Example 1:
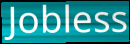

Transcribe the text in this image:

Jobless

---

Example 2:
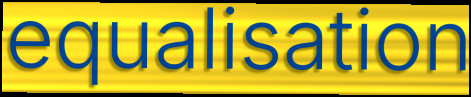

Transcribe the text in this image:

equalisation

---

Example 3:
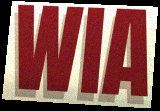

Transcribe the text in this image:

WIA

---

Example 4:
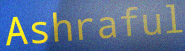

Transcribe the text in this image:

Ashraful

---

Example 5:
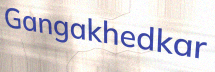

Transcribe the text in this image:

Gangakhedkar